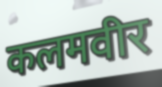
कलमवीर